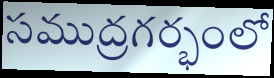
సముద్రగర్భంలో